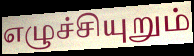
எழுச்சியுறும்